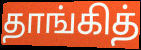
தாங்கித்